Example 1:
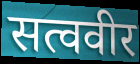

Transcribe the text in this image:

सत्ववीर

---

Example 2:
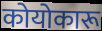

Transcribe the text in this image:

कोयोकारू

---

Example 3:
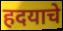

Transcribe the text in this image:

हदयाचे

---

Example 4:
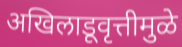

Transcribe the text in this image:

अखिलाडूवृत्तीमुळे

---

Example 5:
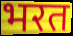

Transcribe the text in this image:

भरत